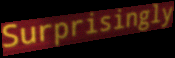
Surprisingly